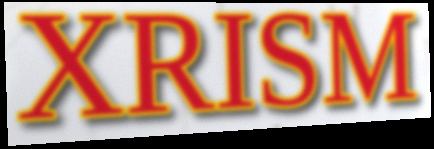
XRISM